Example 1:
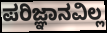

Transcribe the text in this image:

ಪರಿಜ್ಞಾನವಿಲ್ಲ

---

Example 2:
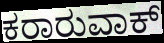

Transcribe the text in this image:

ಕರಾರುವಾಕ್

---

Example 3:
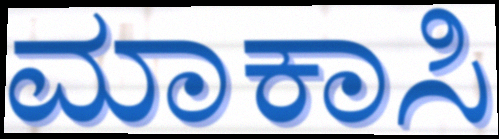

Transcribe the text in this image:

ಮಾಕಾಸಿ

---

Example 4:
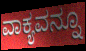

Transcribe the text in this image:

ವಾಕ್ಯವನ್ನೂ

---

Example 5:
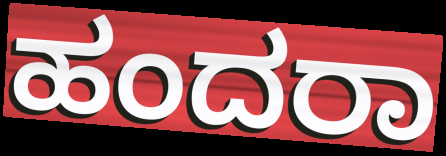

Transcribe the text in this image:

ಹಂದರಾ